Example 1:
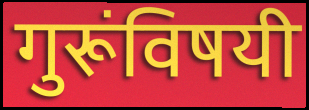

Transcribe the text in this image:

गुरूंविषयी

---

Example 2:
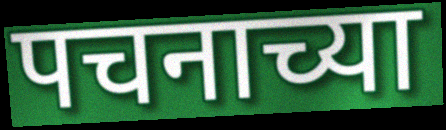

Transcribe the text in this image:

पचनाच्या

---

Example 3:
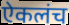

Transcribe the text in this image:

ऐकलंच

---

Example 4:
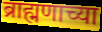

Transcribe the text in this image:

ब्राह्मणाच्या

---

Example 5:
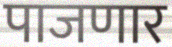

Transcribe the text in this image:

पाजणार